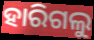
ହାରିଗଲୁ